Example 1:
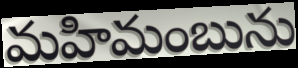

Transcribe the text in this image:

మహిమంబును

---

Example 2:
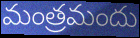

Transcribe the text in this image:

మంత్రమందు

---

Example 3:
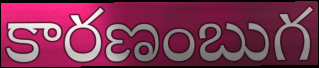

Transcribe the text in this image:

కారణంబుగ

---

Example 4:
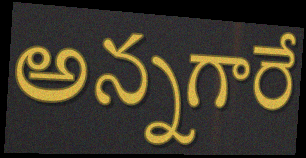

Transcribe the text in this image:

అన్నగారే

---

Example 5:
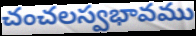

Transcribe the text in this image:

చంచలస్వభావము